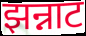
झन्नाट